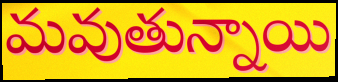
మవుతున్నాయి